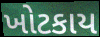
ખોટકાય